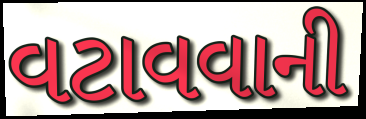
વટાવવાની